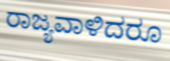
ರಾಜ್ಯವಾಳಿದರೂ